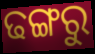
ଢଙ୍ଗରୁ